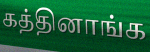
கத்தினாங்க